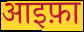
आइफ़ा